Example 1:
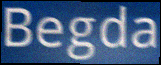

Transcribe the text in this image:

Begda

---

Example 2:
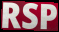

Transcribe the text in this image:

RSP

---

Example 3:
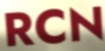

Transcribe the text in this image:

RCN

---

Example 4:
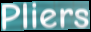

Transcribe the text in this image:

Pliers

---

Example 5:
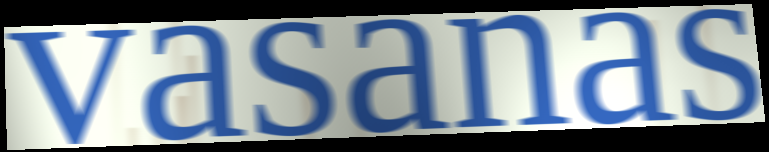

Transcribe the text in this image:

vasanas